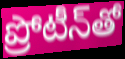
ప్రోటీన్‌తో